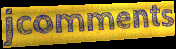
jcomments